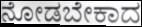
ನೋಡಬೇಕಾದ